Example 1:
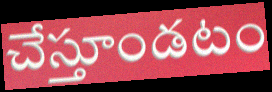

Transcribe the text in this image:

చేస్తూండటం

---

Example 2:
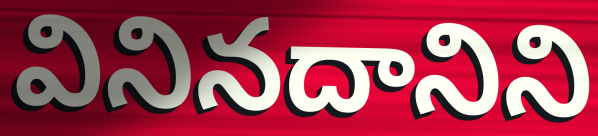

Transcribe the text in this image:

వినినదానిని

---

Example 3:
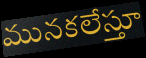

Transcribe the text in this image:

మునకలేస్తూ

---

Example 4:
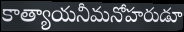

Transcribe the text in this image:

కాత్యాయనీమనోహరుడూ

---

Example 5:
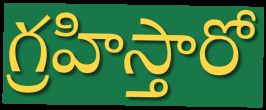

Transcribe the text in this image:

గ్రహిస్తారో